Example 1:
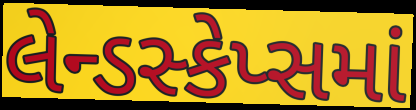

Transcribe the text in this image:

લેન્ડસ્કેપ્સમાં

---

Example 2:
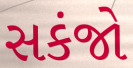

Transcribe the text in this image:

સકંજો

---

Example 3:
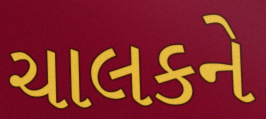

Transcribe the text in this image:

ચાલકને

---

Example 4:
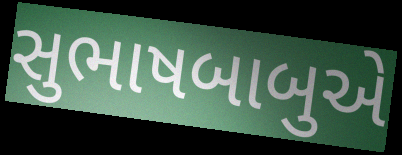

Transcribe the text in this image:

સુભાષબાબુએ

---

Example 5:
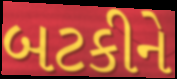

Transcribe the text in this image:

બટકીને